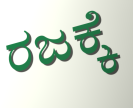
ರಜಕ್ಕೆ